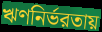
ঋণনির্ভরতায়